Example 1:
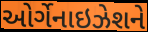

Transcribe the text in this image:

ઓર્ગેનાઇઝેશને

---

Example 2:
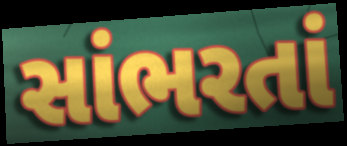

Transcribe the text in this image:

સાંભરતાં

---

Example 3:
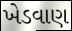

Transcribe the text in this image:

ખેડવાણ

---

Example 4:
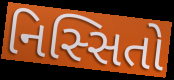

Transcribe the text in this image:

નિસ્સિતો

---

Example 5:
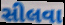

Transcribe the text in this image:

સીલવા